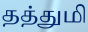
தத்துமி